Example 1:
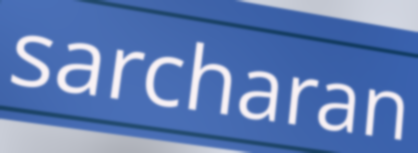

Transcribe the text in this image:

sarcharan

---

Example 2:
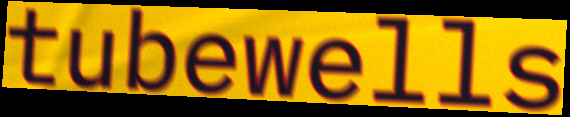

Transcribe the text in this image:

tubewells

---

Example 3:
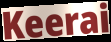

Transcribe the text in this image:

Keerai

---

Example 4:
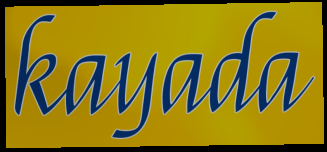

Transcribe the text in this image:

kayada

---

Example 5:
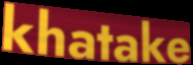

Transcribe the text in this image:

khatake